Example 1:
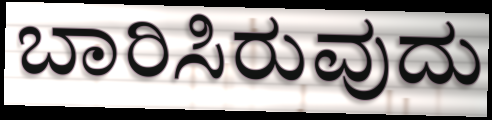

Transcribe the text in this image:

ಬಾರಿಸಿರುವುದು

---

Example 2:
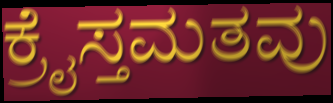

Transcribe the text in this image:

ಕ್ರೈಸ್ತಮತವು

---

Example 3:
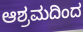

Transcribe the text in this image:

ಆಶ್ರಮದಿಂದ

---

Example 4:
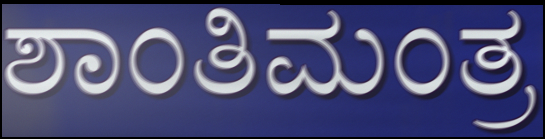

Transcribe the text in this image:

ಶಾಂತಿಮಂತ್ರ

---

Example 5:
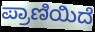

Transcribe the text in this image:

ಪ್ರಾಣಿಯಿದೆ